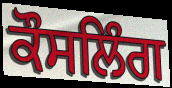
ਕੌਸਲਿੰਗ